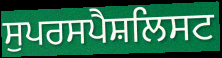
ਸੁਪਰਸਪੈਸ਼ਲਿਸਟ